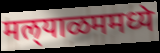
मल्याळममध्ये